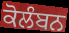
ਕੋਲੰਬਨ